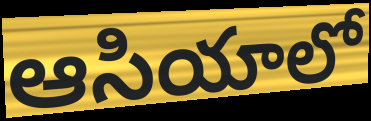
ఆసియాలో